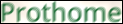
Prothome